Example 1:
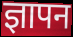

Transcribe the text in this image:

ज्ञापन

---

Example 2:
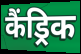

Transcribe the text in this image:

कैंड्रिक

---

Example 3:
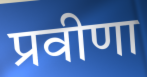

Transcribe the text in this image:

प्रवीणा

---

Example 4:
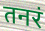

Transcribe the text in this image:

तनरं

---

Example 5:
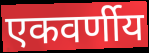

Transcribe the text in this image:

एकवर्णीय